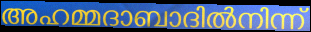
അഹമ്മദാബാദിൽനിന്ന്